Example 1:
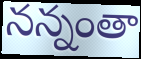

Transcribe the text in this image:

నన్నంతా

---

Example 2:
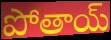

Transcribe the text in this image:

పోతాయ్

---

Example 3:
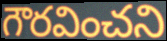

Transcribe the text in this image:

గౌరవించని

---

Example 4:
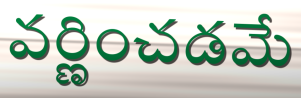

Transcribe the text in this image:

వర్ణించడమే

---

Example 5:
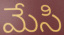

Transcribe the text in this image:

మేసి